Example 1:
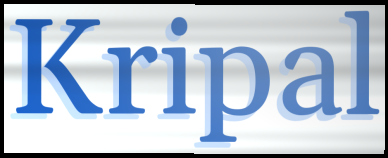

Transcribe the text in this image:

Kripal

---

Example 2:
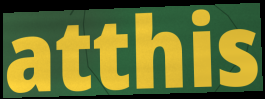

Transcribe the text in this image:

atthis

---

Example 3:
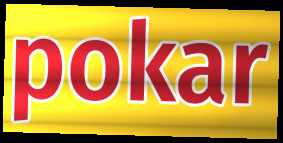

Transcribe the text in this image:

pokar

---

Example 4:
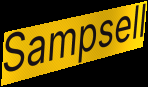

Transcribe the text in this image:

Sampsell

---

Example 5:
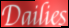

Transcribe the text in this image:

Dailies